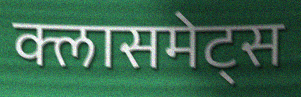
क्लासमेट्स